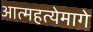
आत्महत्येमागे